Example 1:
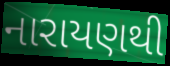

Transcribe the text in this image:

નારાયણથી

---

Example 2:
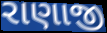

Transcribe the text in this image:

રાણાજી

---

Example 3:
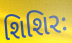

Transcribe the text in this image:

શિશિરઃ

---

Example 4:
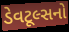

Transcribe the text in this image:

ડેવટૂલ્સનો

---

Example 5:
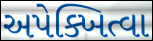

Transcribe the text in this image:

અપેક્ખિત્વા